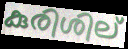
കുരിശില്